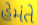
હેમંતે